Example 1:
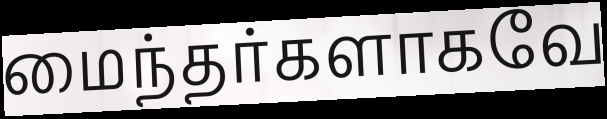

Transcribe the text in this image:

மைந்தர்களாகவே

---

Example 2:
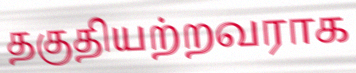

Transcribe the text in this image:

தகுதியற்றவராக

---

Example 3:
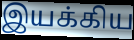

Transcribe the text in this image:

இயக்கிய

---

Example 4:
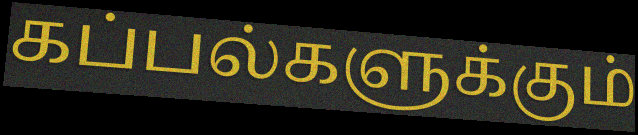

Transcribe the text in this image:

கப்பல்களுக்கும்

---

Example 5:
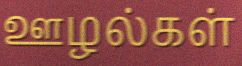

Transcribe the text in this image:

ஊழல்கள்